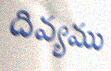
దివ్యము